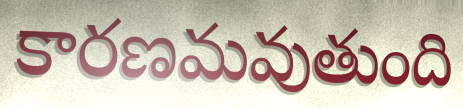
కారణమవుతుంది